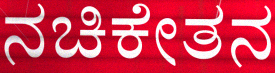
ನಚಿಕೇತನ